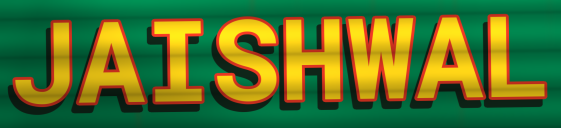
JAISHWAL